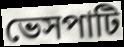
ভেসপাটি